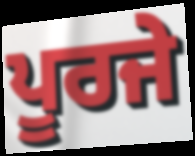
ਪੂਰਜੇ